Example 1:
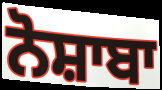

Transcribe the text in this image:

ਨੋਸ਼ਾਬਾ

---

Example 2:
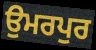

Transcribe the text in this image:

ਉਮਰਪੁਰ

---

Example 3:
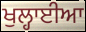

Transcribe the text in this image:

ਖੁਲ੍ਹਾਈਆ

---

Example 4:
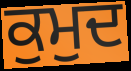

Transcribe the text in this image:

ਕੁਮੁਦ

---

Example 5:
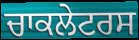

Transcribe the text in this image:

ਚਾਕਲੇਟਰਸ